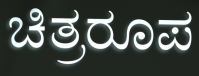
ಚಿತ್ರರೂಪ